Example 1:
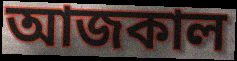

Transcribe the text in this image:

আজকাল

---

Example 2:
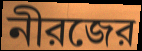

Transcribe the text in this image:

নীরজের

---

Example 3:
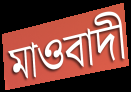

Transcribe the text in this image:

মাওবাদী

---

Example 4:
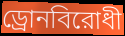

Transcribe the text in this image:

ড্রোনবিরোধী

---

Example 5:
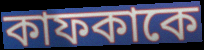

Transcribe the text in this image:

কাফকাকে